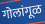
गोलांगूळ